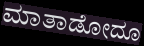
ಮಾತಾಡೋದೂ